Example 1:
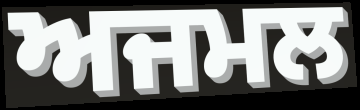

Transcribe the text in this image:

ਅਜਮਲ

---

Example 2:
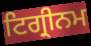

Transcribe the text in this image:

ਟਿਗ੍ਰੀਨਮ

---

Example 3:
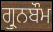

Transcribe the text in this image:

ਗ੍ਰੁਨਬੌਮ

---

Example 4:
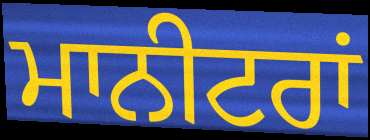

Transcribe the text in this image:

ਮਾਨੀਟਰਾਂ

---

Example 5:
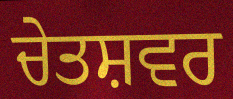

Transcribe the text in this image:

ਚੇਤਸ਼ਵਰ